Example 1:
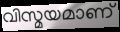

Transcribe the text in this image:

വിസ്മയമാണ്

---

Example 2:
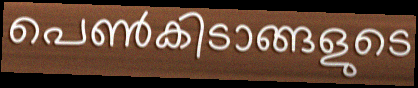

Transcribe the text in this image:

പെൺകിടാങ്ങളുടെ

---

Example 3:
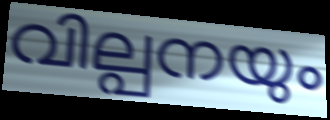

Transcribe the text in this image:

വില്പനയും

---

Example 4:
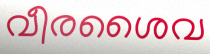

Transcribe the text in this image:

വീരശൈവ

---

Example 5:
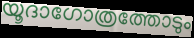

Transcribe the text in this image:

യൂദാഗോത്രത്തോടും